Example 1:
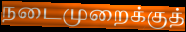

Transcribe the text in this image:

நடைமுறைக்குத்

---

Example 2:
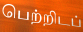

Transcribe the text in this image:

பெற்றிடப்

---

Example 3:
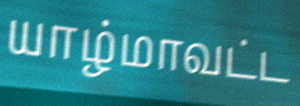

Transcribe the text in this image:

யாழ்மாவட்ட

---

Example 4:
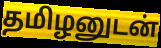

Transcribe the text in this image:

தமிழனுடன்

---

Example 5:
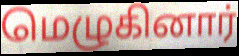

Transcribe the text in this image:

மெழுகினார்